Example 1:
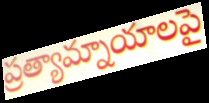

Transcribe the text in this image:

ప్రత్యామ్నాయాలపై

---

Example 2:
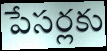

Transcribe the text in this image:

పేసర్లకు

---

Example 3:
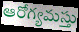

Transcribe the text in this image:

ఆరోగ్యమస్తు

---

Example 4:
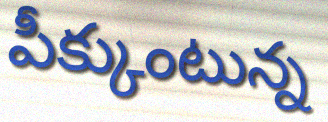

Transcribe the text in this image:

పీక్కుంటున్న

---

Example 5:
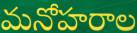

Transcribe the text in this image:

మనోహరాల